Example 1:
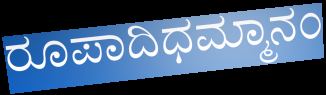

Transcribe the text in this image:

ರೂಪಾದಿಧಮ್ಮಾನಂ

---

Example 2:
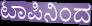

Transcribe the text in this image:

ಟಾಪಿನಿಂದ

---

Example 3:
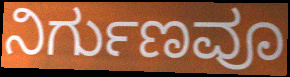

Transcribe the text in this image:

ನಿರ್ಗುಣವೂ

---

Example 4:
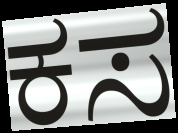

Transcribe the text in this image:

ಕಸ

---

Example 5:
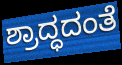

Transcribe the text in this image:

ಶ್ರಾದ್ಧದಂತೆ